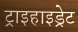
ट्राइहाइड्रेट